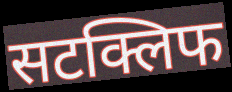
सटक्लिफ